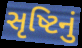
સૃષ્ટિનું